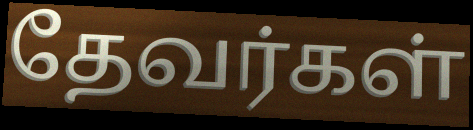
தேவர்கள்